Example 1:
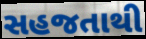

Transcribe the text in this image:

સહજતાથી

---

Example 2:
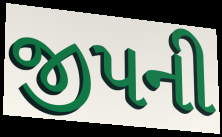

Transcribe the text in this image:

જીપની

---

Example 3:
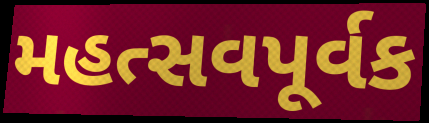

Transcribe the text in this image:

મહત્સવપૂર્વક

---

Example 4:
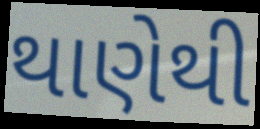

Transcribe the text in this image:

થાણેથી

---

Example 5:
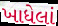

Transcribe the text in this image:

ખાધેલાં